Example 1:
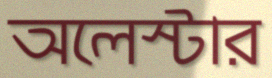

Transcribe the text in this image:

অলেস্টার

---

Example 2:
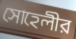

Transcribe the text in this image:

সোহেলীর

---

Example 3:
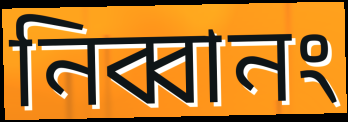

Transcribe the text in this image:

নিব্বানং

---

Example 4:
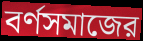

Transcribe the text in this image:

বর্ণসমাজের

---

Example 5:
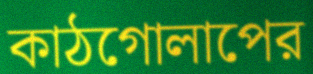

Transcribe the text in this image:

কাঠগোলাপের